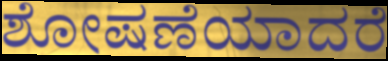
ಶೋಷಣೆಯಾದರೆ